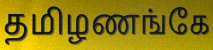
தமிழணங்கே